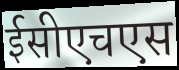
ईसीएचएस